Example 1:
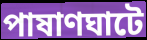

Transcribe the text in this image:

পাষাণঘাটে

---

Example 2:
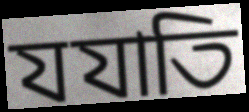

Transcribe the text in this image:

যযাতি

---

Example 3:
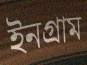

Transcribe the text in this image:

ইনগ্রাম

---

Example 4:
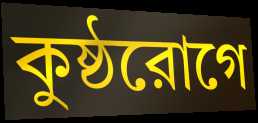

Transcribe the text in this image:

কুষ্ঠরোগে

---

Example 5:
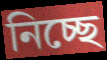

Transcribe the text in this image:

নিচ্ছে